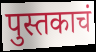
पुस्तकाचं